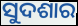
ସୁଦଶାର